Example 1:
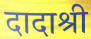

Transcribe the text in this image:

दादाश्री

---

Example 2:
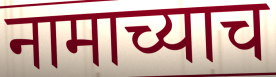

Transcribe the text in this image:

नामाच्याच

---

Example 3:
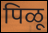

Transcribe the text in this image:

पिळू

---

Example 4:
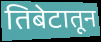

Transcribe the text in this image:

तिबेटातून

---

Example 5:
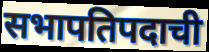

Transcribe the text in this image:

सभापतिपदाची